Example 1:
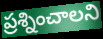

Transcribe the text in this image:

ప్రశ్నించాలని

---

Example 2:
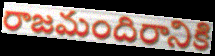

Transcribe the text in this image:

రాజమందిరానికి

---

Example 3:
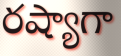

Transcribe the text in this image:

రష్యాగా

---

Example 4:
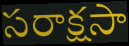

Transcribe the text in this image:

సరాక్షసా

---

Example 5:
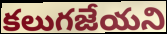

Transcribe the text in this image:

కలుగజేయని